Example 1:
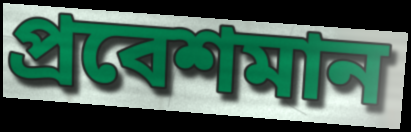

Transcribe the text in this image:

প্রবেশমান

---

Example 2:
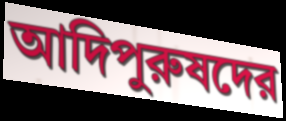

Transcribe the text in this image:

আদিপুরুষদের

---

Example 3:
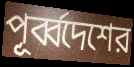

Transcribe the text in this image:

পূর্ব্বদেশের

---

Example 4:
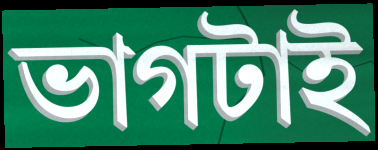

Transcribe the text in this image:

ভাগটাই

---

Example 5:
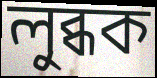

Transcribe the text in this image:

লুব্ধক